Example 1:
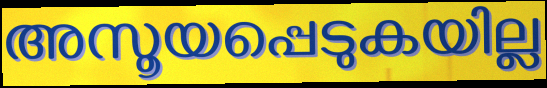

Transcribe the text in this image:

അസൂയപ്പെടുകയില്ല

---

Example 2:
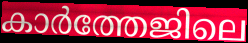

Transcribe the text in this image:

കാർത്തേജിലെ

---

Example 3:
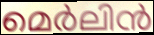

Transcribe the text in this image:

മെർലിൻ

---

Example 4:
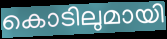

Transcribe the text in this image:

കൊടിലുമായി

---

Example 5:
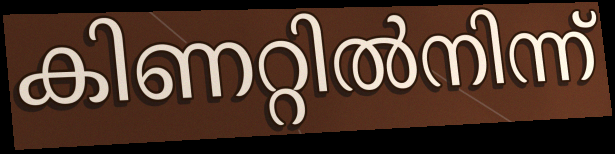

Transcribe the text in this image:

കിണറ്റിൽനിന്ന്